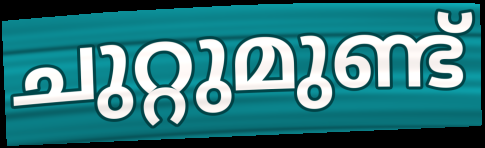
ചുറ്റുമുണ്ട്